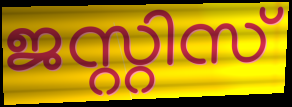
ജസ്റ്റിസ്